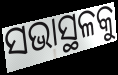
ସଭାସ୍ଥଳକୁ